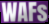
WAFs